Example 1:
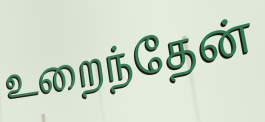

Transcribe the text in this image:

உறைந்தேன்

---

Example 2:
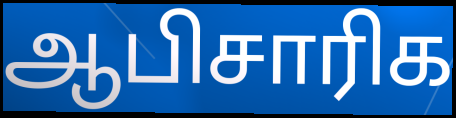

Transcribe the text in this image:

ஆபிசாரிக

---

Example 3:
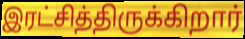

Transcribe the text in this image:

இரட்சித்திருக்கிறார்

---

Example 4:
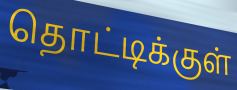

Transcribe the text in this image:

தொட்டிக்குள்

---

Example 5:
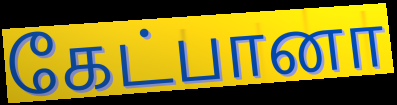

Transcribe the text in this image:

கேட்பானா